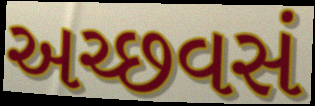
અચ્છવસં